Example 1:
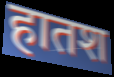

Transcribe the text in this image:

हातश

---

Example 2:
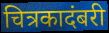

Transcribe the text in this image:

चित्रकादंबरी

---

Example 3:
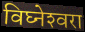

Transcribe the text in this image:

विघ्नेश्वरा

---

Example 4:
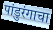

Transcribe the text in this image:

पांडुरंगाचा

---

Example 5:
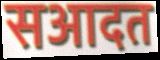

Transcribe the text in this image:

सआदत